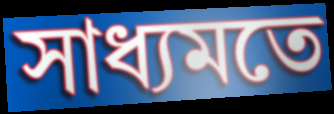
সাধ্যমতে